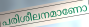
പരിശീലനമാണോ